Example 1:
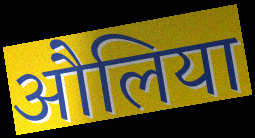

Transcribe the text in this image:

औलिया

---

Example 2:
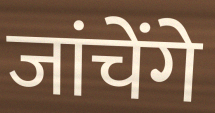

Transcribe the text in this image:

जांचेंगे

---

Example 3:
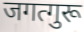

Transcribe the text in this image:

जगत्गुरू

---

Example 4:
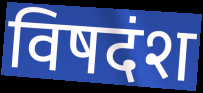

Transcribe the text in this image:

विषदंश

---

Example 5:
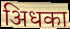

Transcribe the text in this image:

अिधका